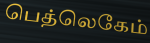
பெத்லெகேம்